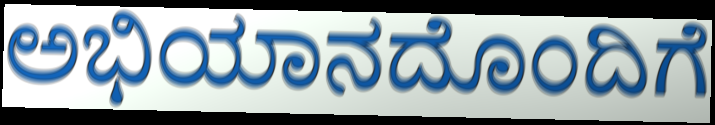
ಅಭಿಯಾನದೊಂದಿಗೆ